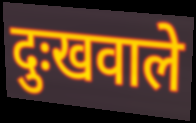
दुःखवाले